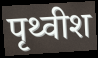
पृथ्वीश